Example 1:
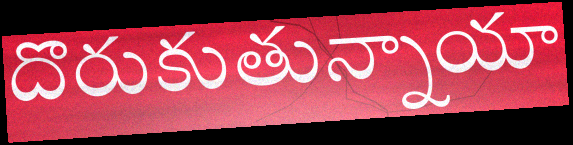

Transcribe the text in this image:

దొరుకుతున్నాయా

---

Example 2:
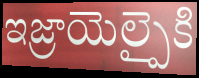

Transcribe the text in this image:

ఇజ్రాయెల్పైకి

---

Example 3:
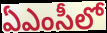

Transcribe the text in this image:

ఏఎంసీలో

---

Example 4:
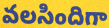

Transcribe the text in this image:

వలసిందిగా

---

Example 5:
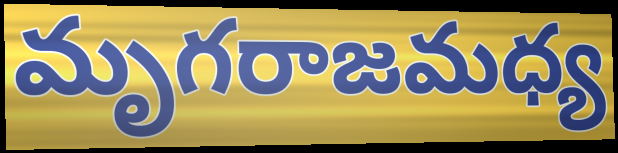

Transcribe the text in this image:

మృగరాజమధ్య